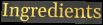
Ingredients